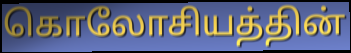
கொலோசியத்தின்